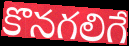
కొనగలిగే